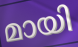
മായി